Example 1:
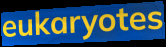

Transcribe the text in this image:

eukaryotes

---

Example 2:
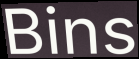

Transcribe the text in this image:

Bins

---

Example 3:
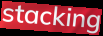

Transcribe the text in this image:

stacking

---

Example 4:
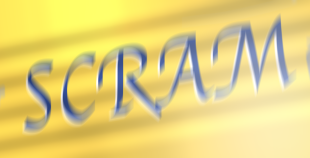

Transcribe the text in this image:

SCRAM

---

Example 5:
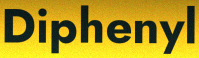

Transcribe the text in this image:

Diphenyl